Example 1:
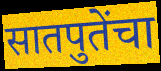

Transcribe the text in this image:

सातपुतेंचा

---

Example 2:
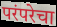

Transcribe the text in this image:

परंपरेचा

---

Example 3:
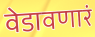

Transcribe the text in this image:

वेडावणारं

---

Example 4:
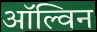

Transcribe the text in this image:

ऑल्विन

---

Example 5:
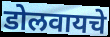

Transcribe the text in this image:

डोलवायचे